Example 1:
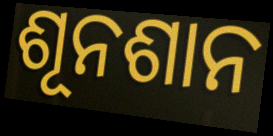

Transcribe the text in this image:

ଶୂନଶାନ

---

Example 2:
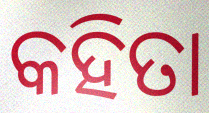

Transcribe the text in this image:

କହିତା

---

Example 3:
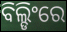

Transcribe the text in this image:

ବିଲ୍ଡିଂରେ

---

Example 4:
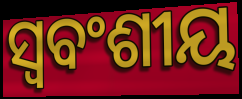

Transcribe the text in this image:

ସ୍ଵବଂଶୀୟ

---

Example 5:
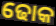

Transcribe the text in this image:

ଢୋକ